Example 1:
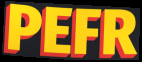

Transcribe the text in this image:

PEFR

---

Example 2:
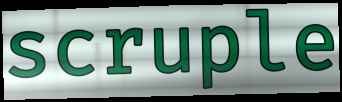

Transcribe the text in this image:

scruple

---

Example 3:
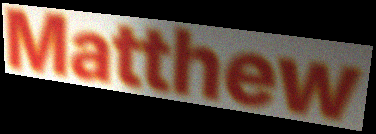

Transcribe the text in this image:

Matthew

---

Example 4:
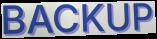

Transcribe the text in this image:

BACKUP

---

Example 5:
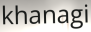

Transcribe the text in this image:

khanagi